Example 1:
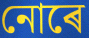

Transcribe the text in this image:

নোৰে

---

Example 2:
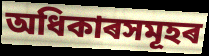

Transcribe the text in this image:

অধিকাৰসমূহৰ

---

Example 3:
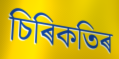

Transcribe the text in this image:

চিৰিকতিৰ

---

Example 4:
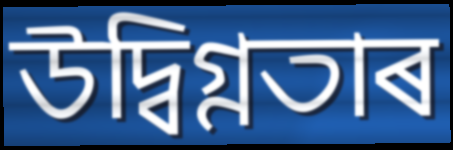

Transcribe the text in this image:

উদ্বিগ্নতাৰ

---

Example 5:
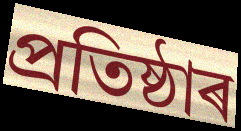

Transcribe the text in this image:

প্ৰতিষ্ঠাৰ